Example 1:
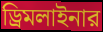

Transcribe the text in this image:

ড্রিমলাইনার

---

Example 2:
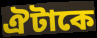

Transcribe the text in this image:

ঐটাকে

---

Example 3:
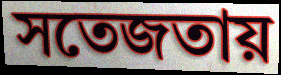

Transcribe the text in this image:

সতেজতায়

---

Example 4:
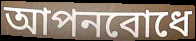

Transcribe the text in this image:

আপনবোধে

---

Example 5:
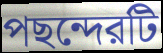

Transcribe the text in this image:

পছন্দেরটি